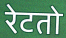
रेटतो